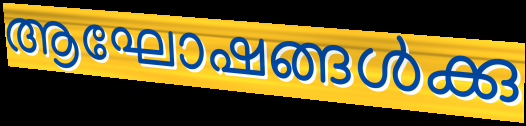
ആഘോഷങ്ങൾക്കു